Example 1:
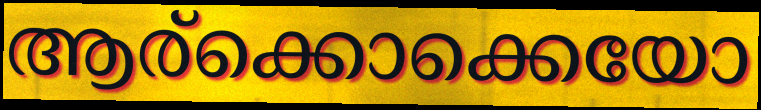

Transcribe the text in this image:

ആര്ക്കൊക്കെയോ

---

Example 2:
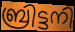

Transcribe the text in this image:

ബ്രിട്ടനി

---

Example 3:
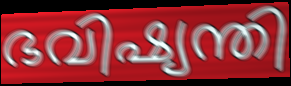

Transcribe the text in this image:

ഭവിഷ്യന്തി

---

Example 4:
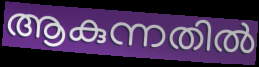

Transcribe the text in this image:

ആകുന്നതിൽ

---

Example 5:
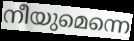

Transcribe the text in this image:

നീയുമെന്നെ